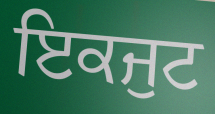
ਇਕਜੁਟ